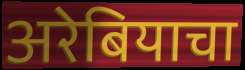
अरेबियाचा